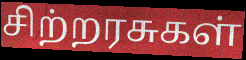
சிற்றரசுகள்